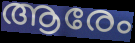
ആരേം